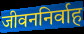
जीवननिर्वाह